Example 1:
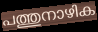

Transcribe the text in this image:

പത്തുനാഴിക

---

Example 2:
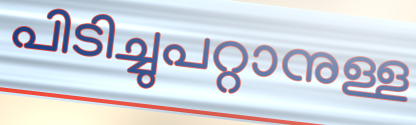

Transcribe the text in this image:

പിടിച്ചുപറ്റാനുള്ള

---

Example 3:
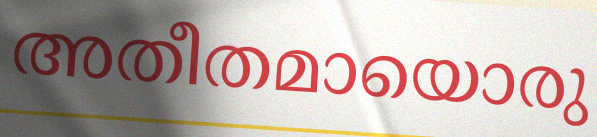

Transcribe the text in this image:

അതീതമായൊരു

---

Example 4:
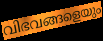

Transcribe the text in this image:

വിഭവങ്ങളെയും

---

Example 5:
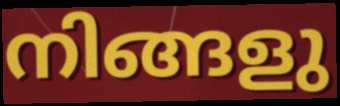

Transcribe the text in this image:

നിങ്ങളു